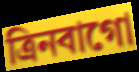
ত্রিনবাগো